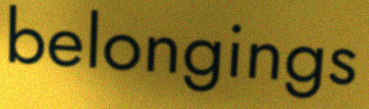
belongings